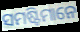
ସମଷ୍ଟିମାନେ